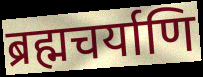
ब्रह्मचर्याणि